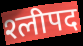
श्लीपद